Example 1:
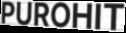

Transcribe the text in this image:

PUROHIT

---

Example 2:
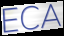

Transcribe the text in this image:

ECA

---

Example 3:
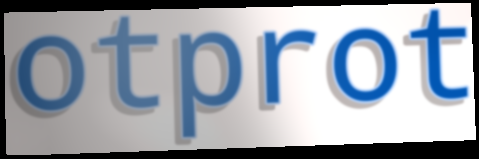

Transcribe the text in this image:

otprot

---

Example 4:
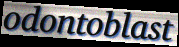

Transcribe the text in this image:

odontoblast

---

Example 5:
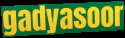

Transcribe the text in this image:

gadyasoor